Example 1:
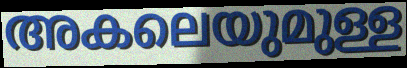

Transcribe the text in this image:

അകലെയുമുള്ള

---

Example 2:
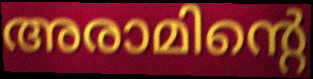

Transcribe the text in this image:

അരാമിന്റെ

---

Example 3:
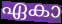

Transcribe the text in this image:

ഏകാ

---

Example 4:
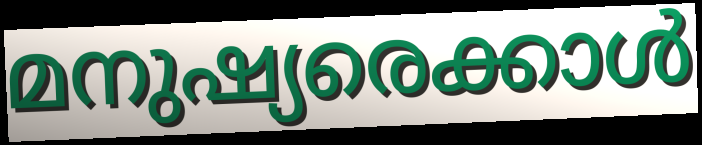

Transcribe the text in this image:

മനുഷ്യരെക്കാൾ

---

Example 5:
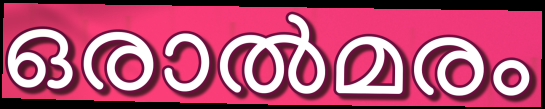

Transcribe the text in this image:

ഒരാൽമരം